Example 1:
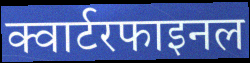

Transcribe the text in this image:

क्वार्टरफाइनल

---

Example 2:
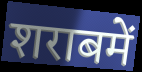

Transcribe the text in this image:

शराबमें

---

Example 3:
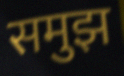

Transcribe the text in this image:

समुझ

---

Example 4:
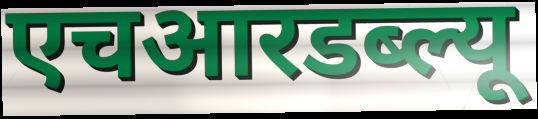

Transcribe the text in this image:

एचआरडब्ल्यू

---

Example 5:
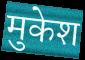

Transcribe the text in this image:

मुकेश